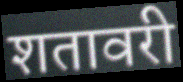
शतावरी